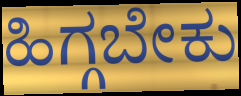
ಹಿಗ್ಗಬೇಕು